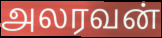
அலரவன்